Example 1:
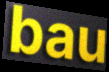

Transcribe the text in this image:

bau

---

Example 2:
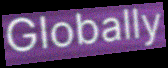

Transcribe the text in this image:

Globally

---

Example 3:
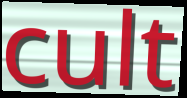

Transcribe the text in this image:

cult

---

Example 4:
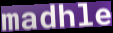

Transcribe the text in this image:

madhle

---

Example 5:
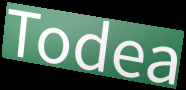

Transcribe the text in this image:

Todea